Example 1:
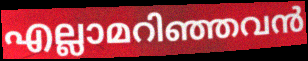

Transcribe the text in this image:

എല്ലാമറിഞ്ഞവൻ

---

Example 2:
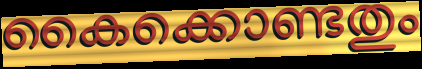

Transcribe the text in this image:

കൈക്കൊണ്ടതും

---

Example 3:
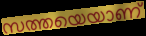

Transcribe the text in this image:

സത്തയെയാണ്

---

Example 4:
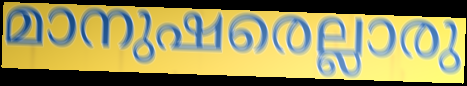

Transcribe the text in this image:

മാനുഷരെല്ലാരു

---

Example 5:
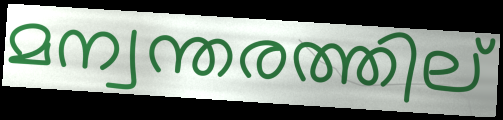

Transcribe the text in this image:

മന്വന്തരത്തില്